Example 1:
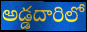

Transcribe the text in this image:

అడ్డదారిలో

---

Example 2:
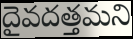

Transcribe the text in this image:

దైవదత్తమని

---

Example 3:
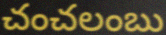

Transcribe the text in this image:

చంచలంబు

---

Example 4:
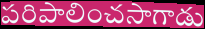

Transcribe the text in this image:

పరిపాలించసాగాడు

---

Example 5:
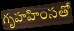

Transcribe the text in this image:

గృహహింసతో